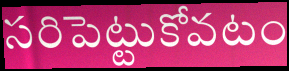
సరిపెట్టుకోవటం